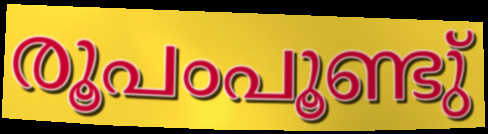
രൂപംപൂണ്ടു്